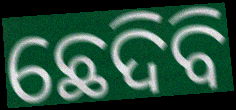
ଛେଦିବି